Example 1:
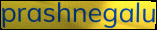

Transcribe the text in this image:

prashnegalu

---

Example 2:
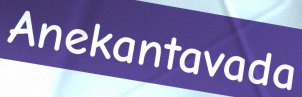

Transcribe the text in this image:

Anekantavada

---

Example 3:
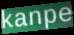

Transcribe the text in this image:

kanpe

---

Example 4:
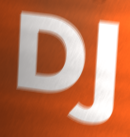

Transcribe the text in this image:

DJ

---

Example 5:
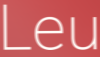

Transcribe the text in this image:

Leu